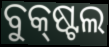
ବୁକ୍‌ଷ୍ଟଲ